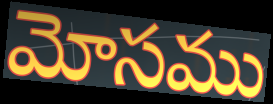
మోసము